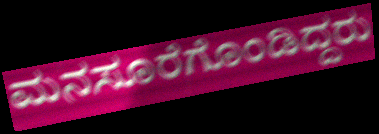
ಮನಸೂರೆಗೊಂಡಿದ್ದರು